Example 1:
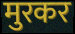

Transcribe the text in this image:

मुरकर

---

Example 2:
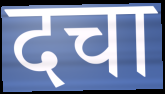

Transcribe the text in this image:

दचा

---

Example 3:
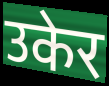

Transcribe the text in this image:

उकेर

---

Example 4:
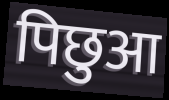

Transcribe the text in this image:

पिछुआ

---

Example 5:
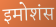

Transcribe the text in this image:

इमोशंस